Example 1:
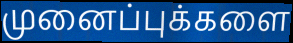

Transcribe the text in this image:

முனைப்புக்களை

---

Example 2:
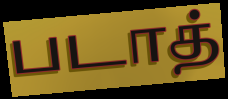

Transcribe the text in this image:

படாத்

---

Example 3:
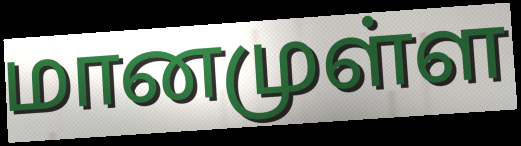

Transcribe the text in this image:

மானமுள்ள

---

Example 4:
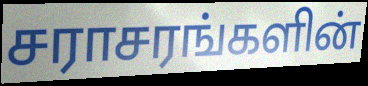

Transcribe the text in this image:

சராசரங்களின்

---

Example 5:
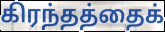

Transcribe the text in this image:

கிரந்தத்தைக்